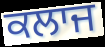
ਕਲਾਜ